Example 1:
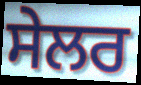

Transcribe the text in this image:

ਸੇਲਰ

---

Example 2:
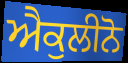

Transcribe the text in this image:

ਐਕੁਲੀਨੋ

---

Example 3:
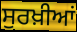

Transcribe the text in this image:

ਸੁਰਖ਼ੀਆਂ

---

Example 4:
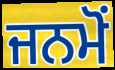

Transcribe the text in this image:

ਜਨਮੋਂ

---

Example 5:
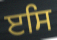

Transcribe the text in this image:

ੲਸਿ